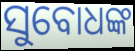
ସୁବୋଧଙ୍କ